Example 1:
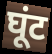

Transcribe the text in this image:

घूंट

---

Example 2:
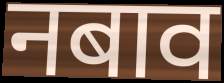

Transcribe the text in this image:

नबाव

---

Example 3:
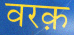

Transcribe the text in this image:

वरक़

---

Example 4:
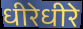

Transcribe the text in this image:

धीरेधीरे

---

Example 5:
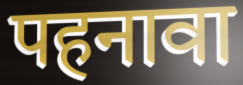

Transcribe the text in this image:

पहनावा